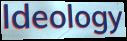
Ideology